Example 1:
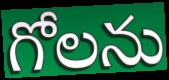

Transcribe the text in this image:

గోలను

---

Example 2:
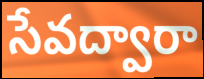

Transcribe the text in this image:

సేవద్వారా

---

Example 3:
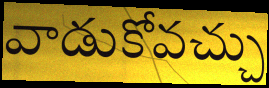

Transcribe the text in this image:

వాడుకోవచ్చు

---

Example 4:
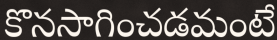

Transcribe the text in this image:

కొనసాగించడమంటే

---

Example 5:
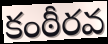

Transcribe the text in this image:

కంఠీరవ